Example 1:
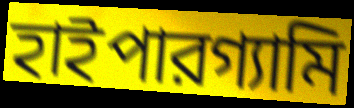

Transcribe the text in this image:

হাইপারগ্যামি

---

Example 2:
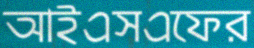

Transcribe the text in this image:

আইএসএফের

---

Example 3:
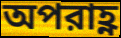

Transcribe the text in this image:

অপরাহ্ণ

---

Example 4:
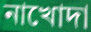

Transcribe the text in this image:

নাখোদা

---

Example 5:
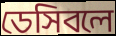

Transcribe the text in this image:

ডেসিবলে